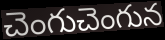
చెంగుచెంగున